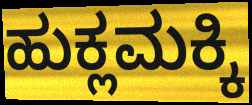
ಹುಕ್ಲಮಕ್ಕಿ